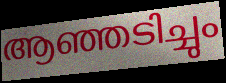
ആഞ്ഞടിച്ചും